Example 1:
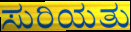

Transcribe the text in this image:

ಸುರಿಯತು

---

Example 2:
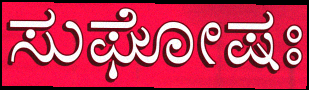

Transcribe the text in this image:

ಸುಘೋಷಃ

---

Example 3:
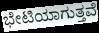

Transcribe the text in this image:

ಭೇಟಿಯಾಗುತ್ತವೆ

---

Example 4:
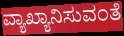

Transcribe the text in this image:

ವ್ಯಾಖ್ಯಾನಿಸುವಂತೆ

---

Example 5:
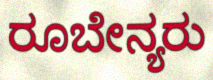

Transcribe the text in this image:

ರೂಬೇನ್ಯರು